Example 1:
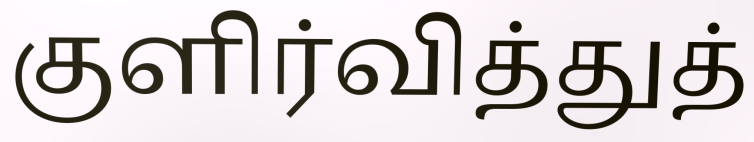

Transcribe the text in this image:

குளிர்வித்துத்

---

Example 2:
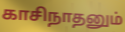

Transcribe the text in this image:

காசிநாதனும்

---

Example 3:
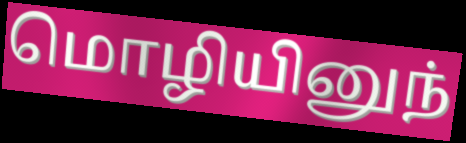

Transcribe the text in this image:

மொழியினுந்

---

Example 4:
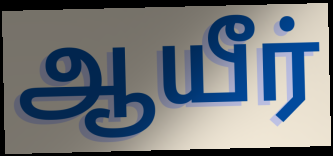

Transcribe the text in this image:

ஆயீர்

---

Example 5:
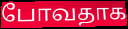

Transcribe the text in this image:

போவதாக